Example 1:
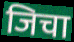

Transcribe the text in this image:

जिचा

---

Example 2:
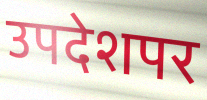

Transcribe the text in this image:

उपदेशपर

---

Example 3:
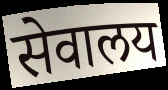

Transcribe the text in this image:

सेवालय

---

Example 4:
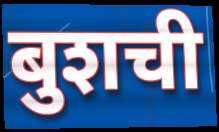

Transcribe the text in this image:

बुशची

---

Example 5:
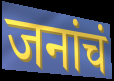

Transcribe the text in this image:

जनांचं